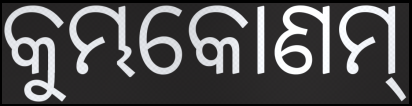
କୁମ୍ଭକୋଣମ୍